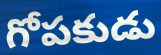
గోపకుడు